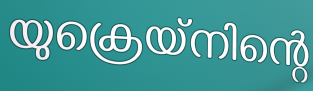
യുക്രെയ്നിന്റെ